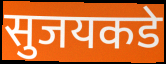
सुजयकडे